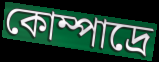
কোম্পাদ্রে